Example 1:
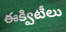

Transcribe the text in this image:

ఈక్విటీలు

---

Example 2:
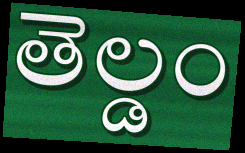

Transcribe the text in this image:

తెల్డం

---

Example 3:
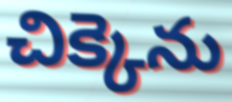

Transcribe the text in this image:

చిక్కెను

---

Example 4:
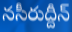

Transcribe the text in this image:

నసీరుద్దీన్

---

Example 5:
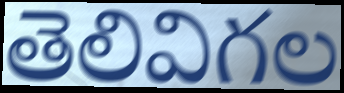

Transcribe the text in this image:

తెలివిగల